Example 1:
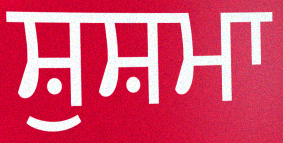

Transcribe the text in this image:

ਸ਼ੁਸ਼ਮਾ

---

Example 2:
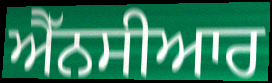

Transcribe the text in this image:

ਐੱਨਸੀਆਰ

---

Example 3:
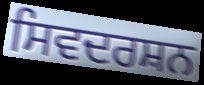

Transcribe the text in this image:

ਸਿਵਦਰਸ਼ਨ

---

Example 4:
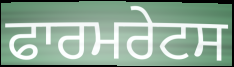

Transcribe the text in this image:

ਫਾਰਮਰੇਟਸ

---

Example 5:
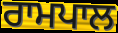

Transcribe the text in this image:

ਰਾਮਪਾਲ